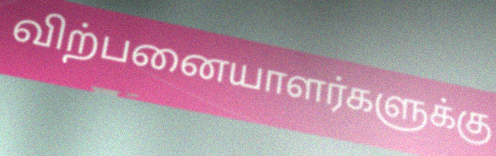
விற்பனையாளர்களுக்கு